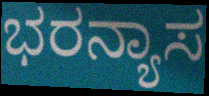
ಭರನ್ಯಾಸ